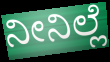
ನೀನಿಲ್ಲೆ